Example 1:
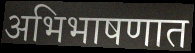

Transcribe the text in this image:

अभिभाषणात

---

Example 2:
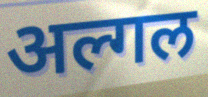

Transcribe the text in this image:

अल्गल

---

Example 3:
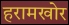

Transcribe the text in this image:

हरामखोर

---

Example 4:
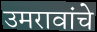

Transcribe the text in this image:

उमरावांचे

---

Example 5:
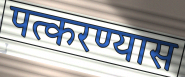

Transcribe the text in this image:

पत्करण्यास